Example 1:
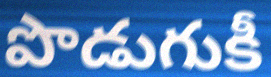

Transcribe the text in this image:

పొడుగుకీ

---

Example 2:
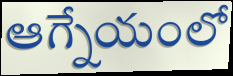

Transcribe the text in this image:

ఆగ్నేయంలో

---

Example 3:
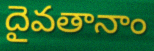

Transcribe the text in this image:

దైవతానాం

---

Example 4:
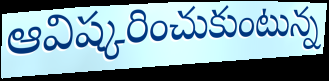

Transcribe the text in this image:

ఆవిష్కరించుకుంటున్న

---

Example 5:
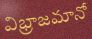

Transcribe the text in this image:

విభ్రాజమానో